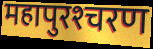
महापुरश्चरण